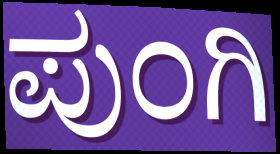
ಪುಂಗಿ